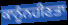
ਕਾਨੂੰਨਹੀਣਤਾ